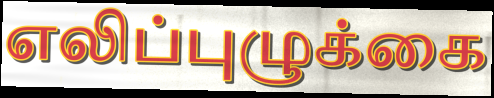
எலிப்புழுக்கை